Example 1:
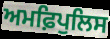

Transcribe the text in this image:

ਅਮਫ਼ਿਪੁਲਿਸ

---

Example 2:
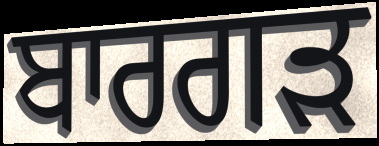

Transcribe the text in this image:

ਬਾਰਗੜ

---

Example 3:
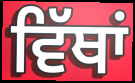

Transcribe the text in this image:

ਵਿੱਥਾਂ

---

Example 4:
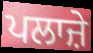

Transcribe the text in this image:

ਪਲਾਜ਼ੇ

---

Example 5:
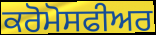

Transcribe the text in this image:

ਕਰੋਮੋਸਫੀਅਰ